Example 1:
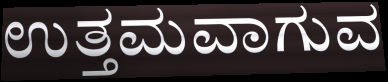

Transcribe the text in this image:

ಉತ್ತಮವಾಗುವ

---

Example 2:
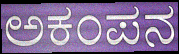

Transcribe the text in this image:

ಅಕಂಪನ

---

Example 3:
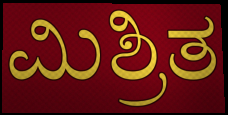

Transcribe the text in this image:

ಮಿಶ್ರಿತ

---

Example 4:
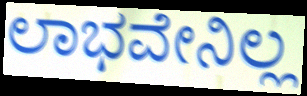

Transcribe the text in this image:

ಲಾಭವೇನಿಲ್ಲ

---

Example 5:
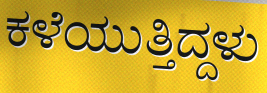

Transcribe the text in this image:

ಕಳೆಯುತ್ತಿದ್ದಳು